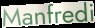
Manfredi